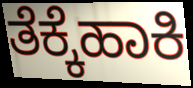
ತೆಕ್ಕೆಹಾಕಿ